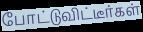
போட்டுவிட்டீர்கள்